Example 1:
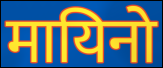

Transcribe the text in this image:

मायिनो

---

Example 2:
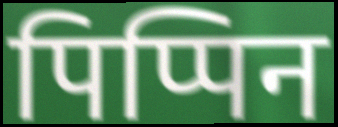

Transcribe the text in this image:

पिप्पिन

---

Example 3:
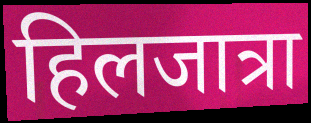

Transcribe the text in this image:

हिलजात्रा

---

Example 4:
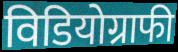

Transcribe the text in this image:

विडियोग्राफी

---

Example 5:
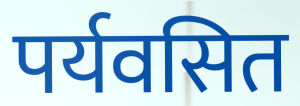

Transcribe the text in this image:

पर्यवसित